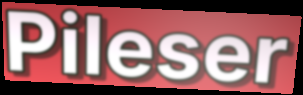
Pileser